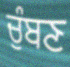
ਚੁੰਬਣ